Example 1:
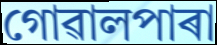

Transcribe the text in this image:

গোৱালপাৰা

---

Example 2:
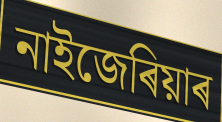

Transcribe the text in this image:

নাইজেৰিয়াৰ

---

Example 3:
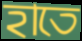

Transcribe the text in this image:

হাতে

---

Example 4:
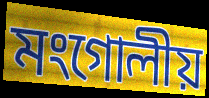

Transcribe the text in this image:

মংগোলীয়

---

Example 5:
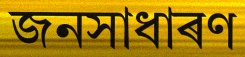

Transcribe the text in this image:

জনসাধাৰণ